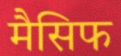
मैसिफ